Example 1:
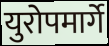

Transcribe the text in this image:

युरोपमार्गे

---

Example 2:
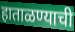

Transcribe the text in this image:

हाताळण्याची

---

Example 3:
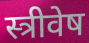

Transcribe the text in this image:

स्त्रीवेष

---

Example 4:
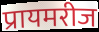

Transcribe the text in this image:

प्रायमरीज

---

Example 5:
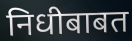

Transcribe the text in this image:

निधीबाबत